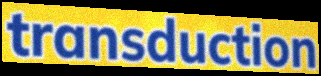
transduction